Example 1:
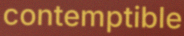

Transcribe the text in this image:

contemptible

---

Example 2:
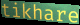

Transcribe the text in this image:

tikhare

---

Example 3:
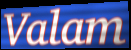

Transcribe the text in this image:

Valam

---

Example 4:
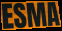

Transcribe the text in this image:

ESMA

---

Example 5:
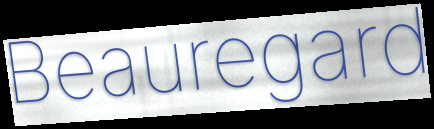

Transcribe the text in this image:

Beauregard